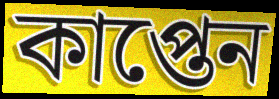
কাপ্তেন